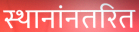
स्थानांनतरित